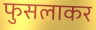
फुसलाकर